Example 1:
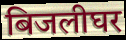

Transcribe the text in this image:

बिजलीघर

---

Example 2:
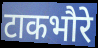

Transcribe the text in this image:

टाकभौरे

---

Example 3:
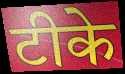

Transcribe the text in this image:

टीके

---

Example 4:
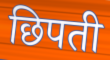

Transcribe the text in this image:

छिपती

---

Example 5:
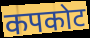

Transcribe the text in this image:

कपकोट